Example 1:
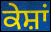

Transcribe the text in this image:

ਕੇਸ਼ਾਂ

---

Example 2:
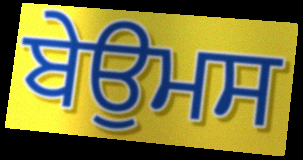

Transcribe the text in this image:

ਬੇਉਮਸ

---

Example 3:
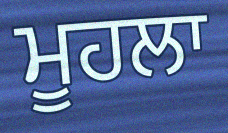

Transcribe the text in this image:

ਮੂਹਲਾ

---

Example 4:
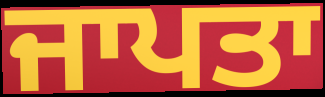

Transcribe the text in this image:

ਜਾਪਤਾ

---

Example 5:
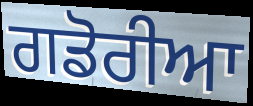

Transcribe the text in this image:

ਗਡੋਰੀਆ